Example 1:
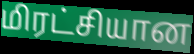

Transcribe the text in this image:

மிரட்சியான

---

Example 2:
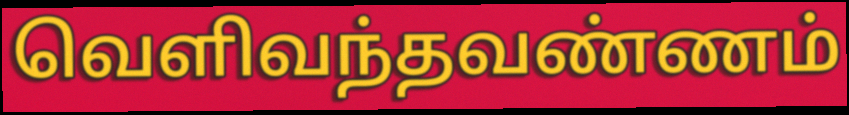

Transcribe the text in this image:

வெளிவந்தவண்ணம்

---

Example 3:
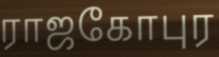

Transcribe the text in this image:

ராஜகோபுர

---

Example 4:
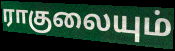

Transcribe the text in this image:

ராகுலையும்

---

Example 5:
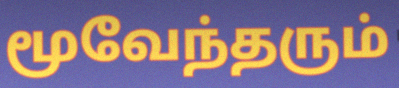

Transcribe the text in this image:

மூவேந்தரும்